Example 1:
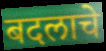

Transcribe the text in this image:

बदलाचे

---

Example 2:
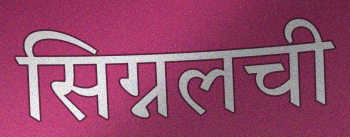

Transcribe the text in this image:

सिग्नलची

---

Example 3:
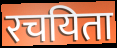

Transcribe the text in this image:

रचयिता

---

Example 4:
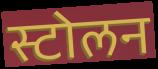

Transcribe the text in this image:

स्टोलन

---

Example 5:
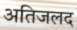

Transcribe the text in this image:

अतिजलद